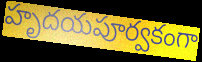
హృదయపూర్వకంగా